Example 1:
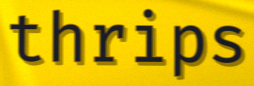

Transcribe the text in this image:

thrips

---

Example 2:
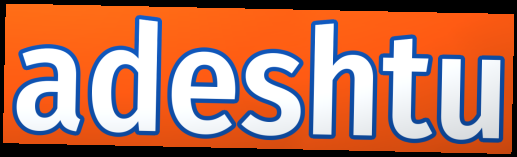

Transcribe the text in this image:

adeshtu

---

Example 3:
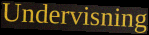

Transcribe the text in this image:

Undervisning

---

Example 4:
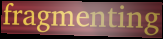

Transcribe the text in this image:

fragmenting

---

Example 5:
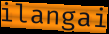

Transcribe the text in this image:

ilangai